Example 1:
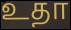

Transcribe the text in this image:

உதா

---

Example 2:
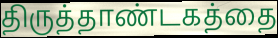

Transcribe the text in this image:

திருத்தாண்டகத்தை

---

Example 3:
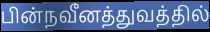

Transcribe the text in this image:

பின்நவீனத்துவத்தில்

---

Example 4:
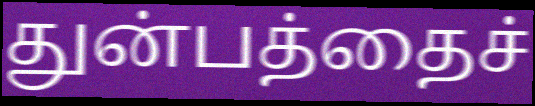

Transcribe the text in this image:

துன்பத்தைச்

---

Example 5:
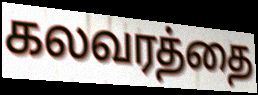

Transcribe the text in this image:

கலவரத்தை